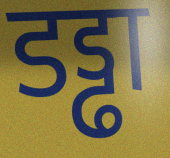
डड्ढा